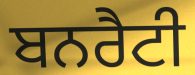
ਬਨਰੈਟੀ